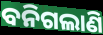
ବନିଗଲାଣି